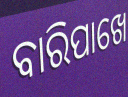
ବାରିପାଖେ